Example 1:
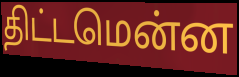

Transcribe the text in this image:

திட்டமென்ன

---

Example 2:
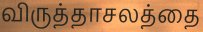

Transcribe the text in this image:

விருத்தாசலத்தை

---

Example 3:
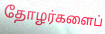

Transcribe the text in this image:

தோழர்களைப்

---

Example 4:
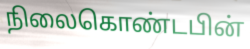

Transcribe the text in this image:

நிலைகொண்டபின்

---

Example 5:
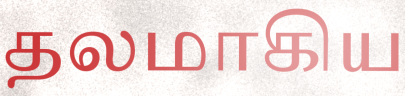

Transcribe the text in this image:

தலமாகிய